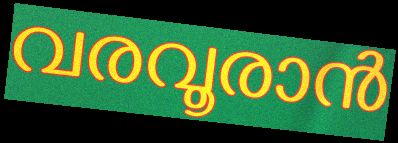
വരവൂരാൻ